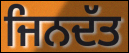
ਜਿਨਦੱਤ